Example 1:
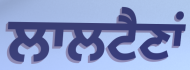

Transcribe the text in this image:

ਲਾਲਟੈਣਾਂ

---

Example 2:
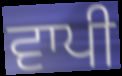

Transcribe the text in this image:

ਵਾਪੀ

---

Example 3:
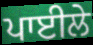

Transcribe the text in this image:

ਪਾਈਲੇ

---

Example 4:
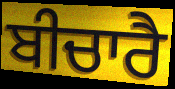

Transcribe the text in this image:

ਬੀਚਾਰੈ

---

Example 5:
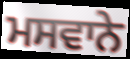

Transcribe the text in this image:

ਮਸਵਾਨੇ